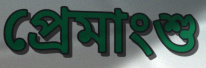
প্রেমাংশু